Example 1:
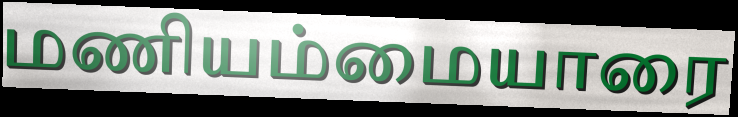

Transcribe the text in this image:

மணியம்மையாரை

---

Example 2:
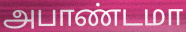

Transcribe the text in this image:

அபாண்டமா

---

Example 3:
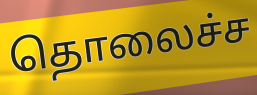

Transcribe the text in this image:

தொலைச்ச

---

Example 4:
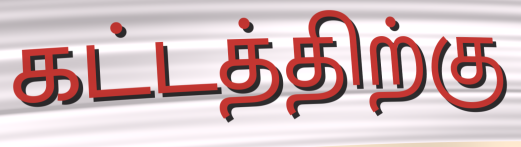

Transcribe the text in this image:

கட்டத்திற்கு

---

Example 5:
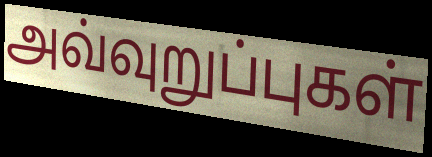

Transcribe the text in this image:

அவ்வுறுப்புகள்